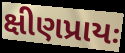
ક્ષીણપ્રાયઃ